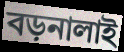
বড়নালাই